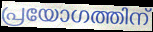
പ്രയോഗത്തിന്